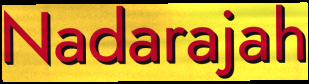
Nadarajah